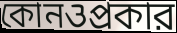
কোনওপ্রকার